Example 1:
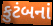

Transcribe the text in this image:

કુટંબનાં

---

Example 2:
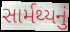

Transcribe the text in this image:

સાર્મથ્યનું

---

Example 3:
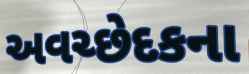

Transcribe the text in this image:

અવચ્છેદકના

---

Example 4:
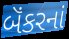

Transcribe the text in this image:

બૅંકરનાં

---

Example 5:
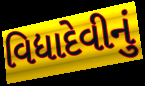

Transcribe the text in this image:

વિદ્યાદેવીનું